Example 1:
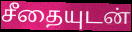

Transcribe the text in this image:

சீதையுடன்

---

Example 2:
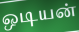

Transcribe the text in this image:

ஒடியன்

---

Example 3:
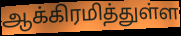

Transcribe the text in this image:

ஆக்கிரமித்துள்ள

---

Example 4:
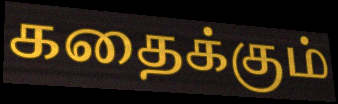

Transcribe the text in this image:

கதைக்கும்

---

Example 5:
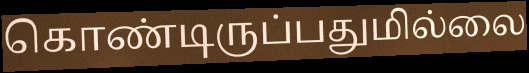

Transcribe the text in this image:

கொண்டிருப்பதுமில்லை